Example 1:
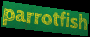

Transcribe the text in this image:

parrotfish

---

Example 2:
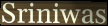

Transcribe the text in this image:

Sriniwas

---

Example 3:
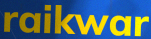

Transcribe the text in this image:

raikwar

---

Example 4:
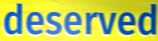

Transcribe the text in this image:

deserved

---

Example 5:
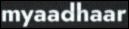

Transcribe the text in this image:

myaadhaar